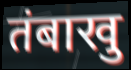
तंबाखु